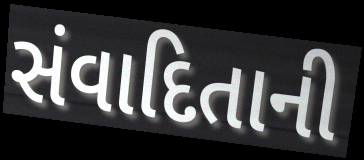
સંવાદિતાની